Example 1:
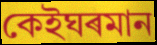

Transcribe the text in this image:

কেইঘৰমান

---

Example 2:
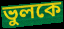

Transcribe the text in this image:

ভুলকে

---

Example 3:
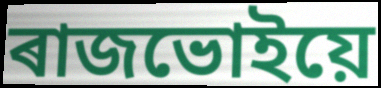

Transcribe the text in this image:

ৰাজভোইয়ে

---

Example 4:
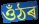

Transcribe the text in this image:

ওঁঠৰ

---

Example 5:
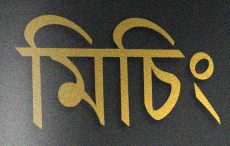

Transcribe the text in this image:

মিচিং